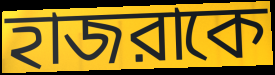
হাজরাকে